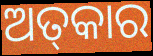
ଅତ୍‌କାର